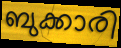
ബുക്കാരി